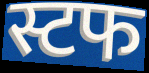
स्टफ